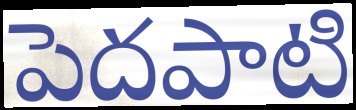
పెదపాటి